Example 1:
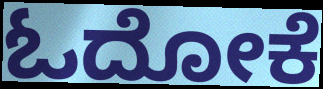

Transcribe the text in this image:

ಓದೋಕೆ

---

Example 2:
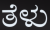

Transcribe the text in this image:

ತೆಳು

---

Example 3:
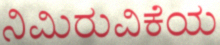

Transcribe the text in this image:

ನಿಮಿರುವಿಕೆಯ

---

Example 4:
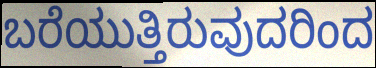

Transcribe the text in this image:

ಬರೆಯುತ್ತಿರುವುದರಿಂದ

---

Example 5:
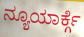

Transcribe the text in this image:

ನ್ಯೂಯಾರ್ಕ್ಗೆ